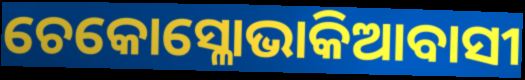
ଚେକୋସ୍ଳୋଭାକିଆବାସୀ